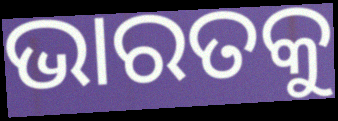
ଭାରତକୁ